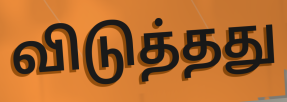
விடுத்தது